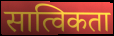
सात्विकता